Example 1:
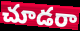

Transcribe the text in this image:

చూడరా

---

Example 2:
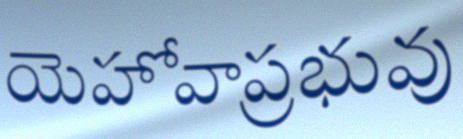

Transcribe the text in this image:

యెహోవాప్రభువు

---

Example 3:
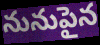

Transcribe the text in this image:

నునుపైన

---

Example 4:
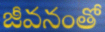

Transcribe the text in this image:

జీవనంతో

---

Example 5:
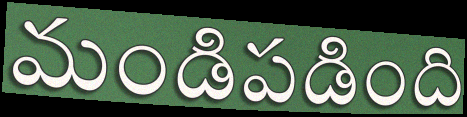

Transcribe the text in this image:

మండిపడింది